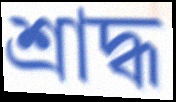
শ্ৰাদ্ধ